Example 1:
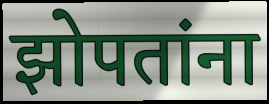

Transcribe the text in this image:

झोपतांना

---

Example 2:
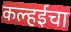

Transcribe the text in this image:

कल्हईचा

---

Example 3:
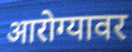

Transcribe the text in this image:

आरोग्यावर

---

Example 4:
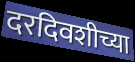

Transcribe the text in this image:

दरदिवशीच्या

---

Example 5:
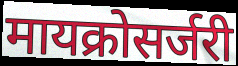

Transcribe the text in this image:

मायक्रोसर्जरी